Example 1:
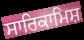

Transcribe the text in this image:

ਸਾਰਿਕਾਮਿਸ਼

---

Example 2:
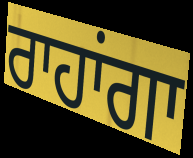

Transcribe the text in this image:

ਰਾਹਾਂਗਾ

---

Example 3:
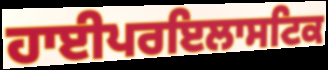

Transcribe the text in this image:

ਹਾਈਪਰਇਲਾਸਟਿਕ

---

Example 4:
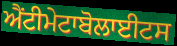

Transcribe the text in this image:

ਐਂਟੀਮੇਟਾਬੋਲਾਈਟਸ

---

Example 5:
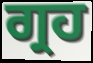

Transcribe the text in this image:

ਗ੍ਰਹ